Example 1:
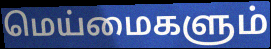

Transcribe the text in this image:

மெய்மைகளும்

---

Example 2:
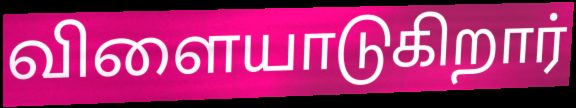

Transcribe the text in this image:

விளையாடுகிறார்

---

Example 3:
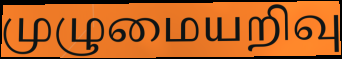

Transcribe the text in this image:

முழுமையறிவு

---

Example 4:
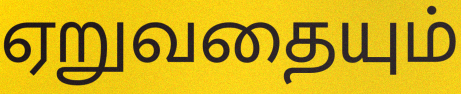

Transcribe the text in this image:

ஏறுவதையும்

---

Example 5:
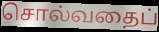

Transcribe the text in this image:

சொல்வதைப்